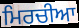
ਮਿਰਚੀਆ